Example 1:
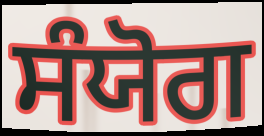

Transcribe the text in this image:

ਸੰਯੋਗ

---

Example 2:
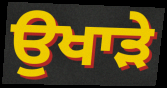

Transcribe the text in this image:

ਉਖਾੜੇ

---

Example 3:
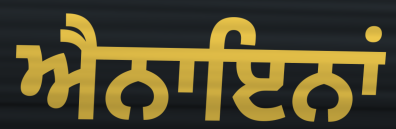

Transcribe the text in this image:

ਐਨਾਇਨਾਂ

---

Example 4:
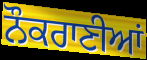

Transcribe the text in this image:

ਨੌਕਰਾਣੀਆਂ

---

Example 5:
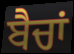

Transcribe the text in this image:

ਬੈਚਾਂ